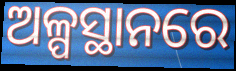
ଅଳ୍ପସ୍ଥାନରେ